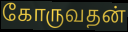
கோருவதன்